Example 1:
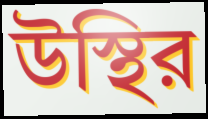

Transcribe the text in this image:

উস্থির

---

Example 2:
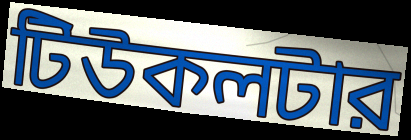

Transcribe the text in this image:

টিউকলটার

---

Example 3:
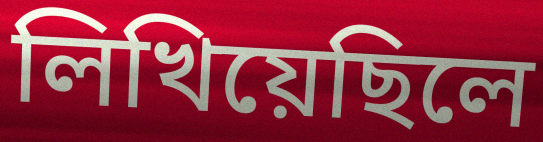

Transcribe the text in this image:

লিখিয়েছিলে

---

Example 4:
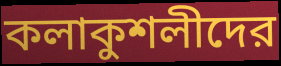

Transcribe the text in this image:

কলাকুশলীদের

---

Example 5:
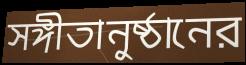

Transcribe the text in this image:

সঙ্গীতানুষ্ঠানের